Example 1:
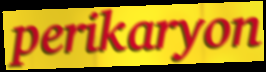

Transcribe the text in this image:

perikaryon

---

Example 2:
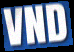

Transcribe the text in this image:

VND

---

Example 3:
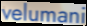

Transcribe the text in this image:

velumani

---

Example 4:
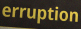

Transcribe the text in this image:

erruption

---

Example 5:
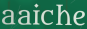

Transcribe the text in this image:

aaiche